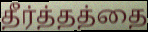
தீர்த்தத்தை